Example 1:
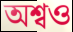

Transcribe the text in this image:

অশ্বও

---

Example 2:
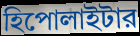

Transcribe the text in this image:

হিপোলাইটার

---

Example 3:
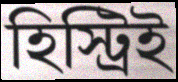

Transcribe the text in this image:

হিস্ট্রিই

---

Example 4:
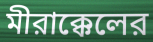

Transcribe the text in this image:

মীরাক্কেলের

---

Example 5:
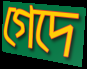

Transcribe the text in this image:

গেদে